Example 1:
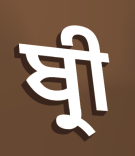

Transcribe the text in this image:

ਬ੍ਰੀ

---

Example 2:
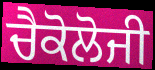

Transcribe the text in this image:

ਚੈਕੋਲੋਜੀ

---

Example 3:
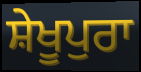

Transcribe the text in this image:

ਸ਼ੇਖੂਪੁਰਾ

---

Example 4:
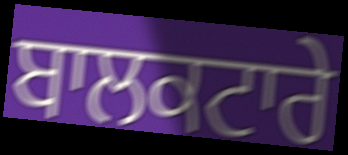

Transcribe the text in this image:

ਬਾਲਕਟਾਰੇ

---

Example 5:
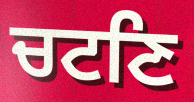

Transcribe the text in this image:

ਚਟਣਿ